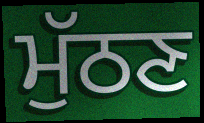
ਮੁੱਠਣ